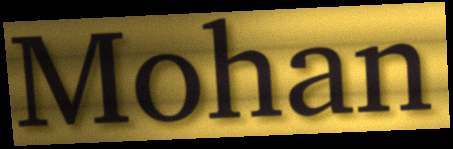
Mohan